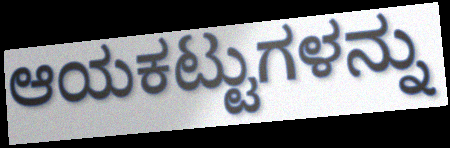
ಆಯಕಟ್ಟುಗಳನ್ನು